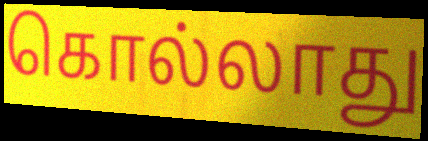
கொல்லாது